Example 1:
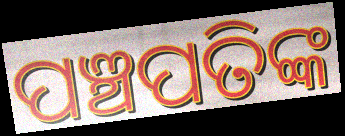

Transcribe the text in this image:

ପଞ୍ଚପତିଙ୍କ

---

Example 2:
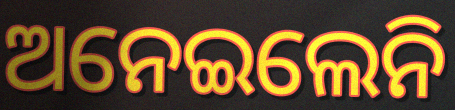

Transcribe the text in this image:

ଅନେଇଲେନି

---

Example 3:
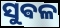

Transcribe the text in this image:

ସୁଵଳ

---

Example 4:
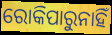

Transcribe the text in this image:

ରୋକିପାରୁନାହିଁ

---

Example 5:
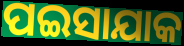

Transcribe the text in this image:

ପଇସାଯାକ